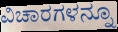
ವಿಚಾರಗಳನ್ನೂ